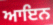
ਆਇਨ